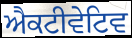
ਐਕਟੀਵੇਟਿਵ